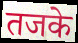
तजके